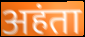
अहंता